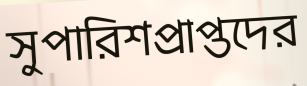
সুপারিশপ্রাপ্তদের